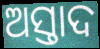
ଅସ୍ତାଦ